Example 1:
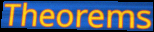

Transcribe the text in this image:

Theorems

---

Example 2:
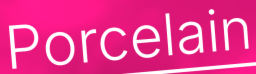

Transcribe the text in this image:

Porcelain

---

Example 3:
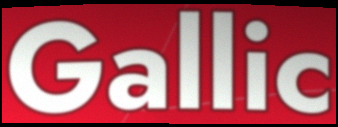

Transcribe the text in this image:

Gallic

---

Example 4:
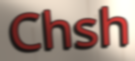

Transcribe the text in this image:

Chsh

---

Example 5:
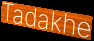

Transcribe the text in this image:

Tadakhe